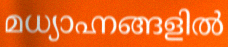
മധ്യാഹ്നങ്ങളിൽ